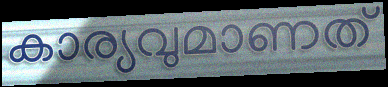
കാര്യവുമാണത്